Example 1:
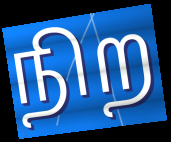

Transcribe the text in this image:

நிற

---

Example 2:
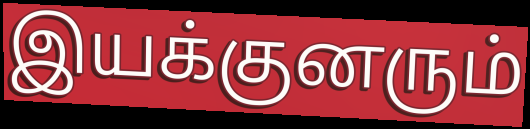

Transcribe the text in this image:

இயக்குனரும்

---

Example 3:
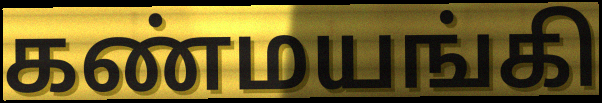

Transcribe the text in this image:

கண்மயங்கி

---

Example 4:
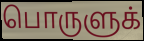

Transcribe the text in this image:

பொருளுக்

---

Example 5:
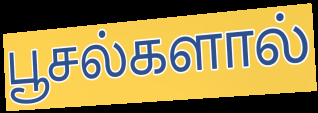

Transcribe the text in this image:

பூசல்களால்